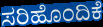
ಸರಿಹೊಂದಿಕೆ